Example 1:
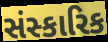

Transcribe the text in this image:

સંસ્કારિક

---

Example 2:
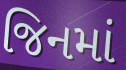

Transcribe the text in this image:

જિનમાં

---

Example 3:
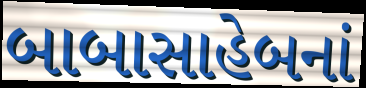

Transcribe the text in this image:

બાબાસાહેબનાં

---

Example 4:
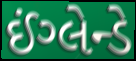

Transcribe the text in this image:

ઈંગ્લેન્ડે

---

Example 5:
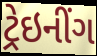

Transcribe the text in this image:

ટ્રેઇનીંગ